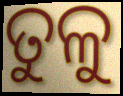
ତୁଳୁ